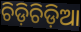
ଚିଡ଼ିଚିଡ଼ିଆ